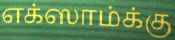
எக்ஸாம்க்கு